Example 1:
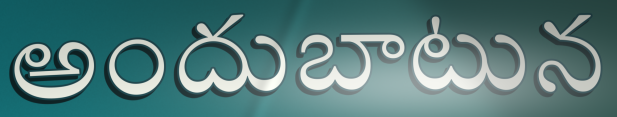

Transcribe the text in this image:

అందుబాటున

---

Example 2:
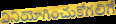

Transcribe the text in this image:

వినియోగించుకోగలిగే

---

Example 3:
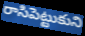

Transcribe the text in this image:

రాసిపెట్టుకుని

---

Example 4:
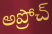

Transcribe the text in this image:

అప్రోచ్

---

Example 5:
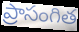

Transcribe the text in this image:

ప్రాసంగిత